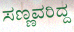
ಸಣ್ಣವರಿದ್ದ